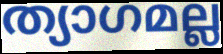
ത്യാഗമല്ല